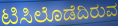
ಟಿಸಿಲೊಡೆದಿರುವ